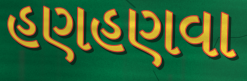
હણહણવા